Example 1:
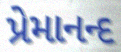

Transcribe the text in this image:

પ્રેમાનન્દ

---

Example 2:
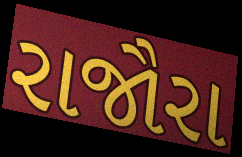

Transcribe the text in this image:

રાજૌરા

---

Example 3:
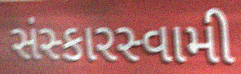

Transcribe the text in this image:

સંસ્કારસ્વામી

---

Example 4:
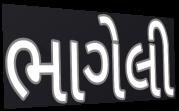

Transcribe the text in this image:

ભાગેલી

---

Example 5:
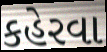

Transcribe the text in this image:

કહેરવા